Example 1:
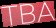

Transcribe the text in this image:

TBA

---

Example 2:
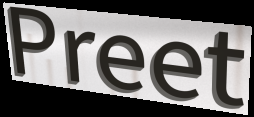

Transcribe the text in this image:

Preet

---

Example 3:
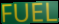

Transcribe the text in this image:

FUEL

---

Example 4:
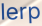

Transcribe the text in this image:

lerp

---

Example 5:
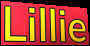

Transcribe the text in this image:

Lillie